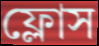
ফ্লোস